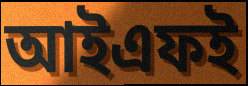
আইএফই